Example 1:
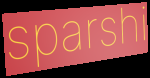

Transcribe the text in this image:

sparshi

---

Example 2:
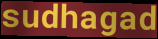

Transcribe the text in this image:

sudhagad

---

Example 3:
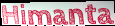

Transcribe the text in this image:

Himanta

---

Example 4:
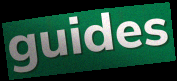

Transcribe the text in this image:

guides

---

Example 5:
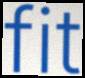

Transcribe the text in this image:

fit